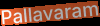
Pallavaram